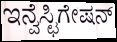
ಇನ್ವೆಸ್ಟಿಗೇಷನ್